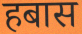
हबास